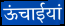
ऊंचाईयां